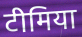
टीमिया